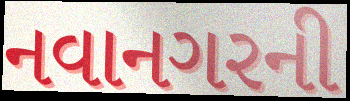
નવાનગરની